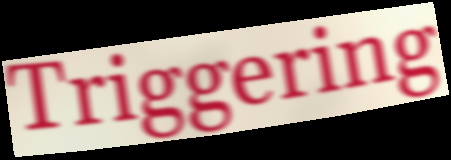
Triggering